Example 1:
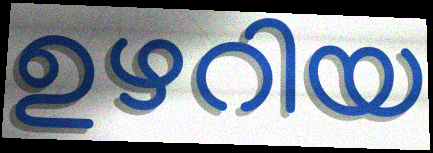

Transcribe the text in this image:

ഉഴറിയ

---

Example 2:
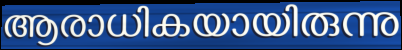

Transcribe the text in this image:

ആരാധികയായിരുന്നു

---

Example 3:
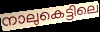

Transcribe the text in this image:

നാലുകെട്ടിലെ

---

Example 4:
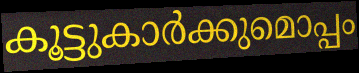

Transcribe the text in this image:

കൂട്ടുകാർക്കുമൊപ്പം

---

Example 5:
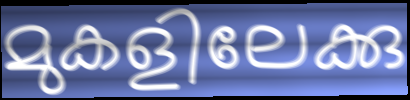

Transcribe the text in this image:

മുകളിലേക്കു